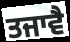
ਤਜਾਵੈ